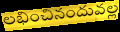
లభించినందువల్ల